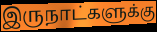
இருநாட்களுக்கு